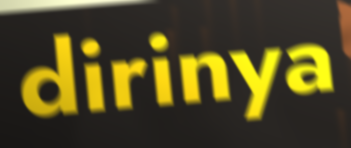
dirinya